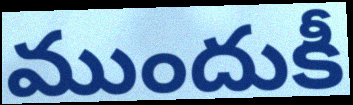
ముందుకీ